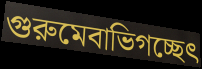
গুরুমেবাভিগচ্ছেৎ